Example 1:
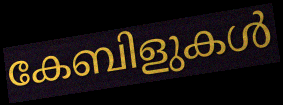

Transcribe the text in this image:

കേബിളുകൾ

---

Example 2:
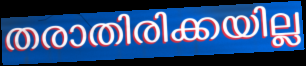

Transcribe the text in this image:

തരാതിരിക്കയില്ല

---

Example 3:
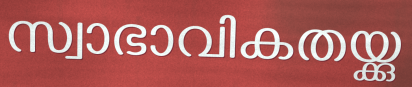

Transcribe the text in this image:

സ്വാഭാവികതയ്ക്കു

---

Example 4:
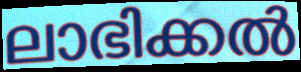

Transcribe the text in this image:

ലാഭിക്കൽ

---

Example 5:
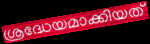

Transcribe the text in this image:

ശ്രദ്ധേയമാക്കിയത്